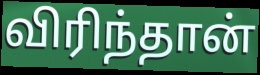
விரிந்தான்